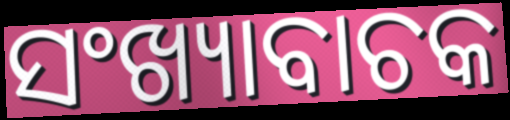
ସଂଖ୍ୟାବାଚକ